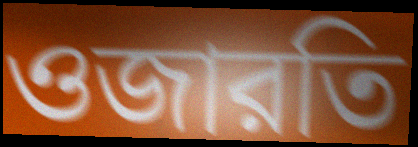
ওজারতি